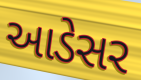
આડેસર